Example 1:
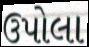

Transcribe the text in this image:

ઉપોલા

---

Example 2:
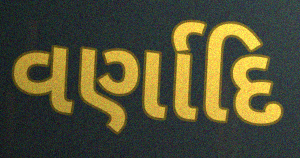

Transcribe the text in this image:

વર્ણાદિ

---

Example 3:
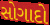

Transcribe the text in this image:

સોગાદો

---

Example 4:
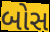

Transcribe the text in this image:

બોસ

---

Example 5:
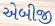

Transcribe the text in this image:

એબીજી